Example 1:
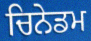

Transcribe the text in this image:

ਚਿਨੇਡਮ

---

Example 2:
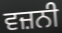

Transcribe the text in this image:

ਵਜ਼ਨੀ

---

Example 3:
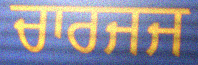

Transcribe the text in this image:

ਚਾਰਜਜ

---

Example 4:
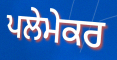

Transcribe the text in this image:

ਪਲੇਮੇਕਰ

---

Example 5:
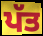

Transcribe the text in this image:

ਪੱਤ